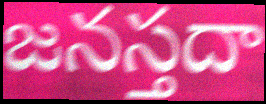
జనస్తదా